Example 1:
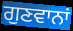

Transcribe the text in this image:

ਗੁਣਵਾਨਾਂ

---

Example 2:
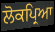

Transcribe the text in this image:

ਲੋਕਪ੍ਰਿਆ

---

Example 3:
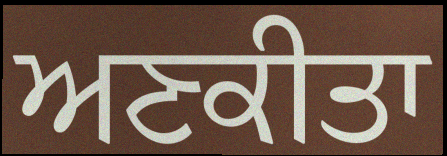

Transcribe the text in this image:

ਅਣਕੀਤਾ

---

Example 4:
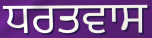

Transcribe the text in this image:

ਧਰਤਵਾਸ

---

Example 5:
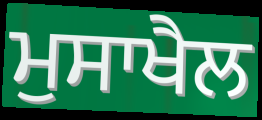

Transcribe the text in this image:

ਮੁਸਾਖੈਲ